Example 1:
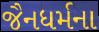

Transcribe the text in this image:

જૈનધર્મના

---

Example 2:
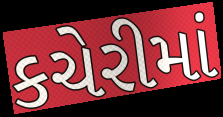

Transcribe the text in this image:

કચેરીમાં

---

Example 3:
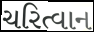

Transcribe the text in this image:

ચરિત્વાન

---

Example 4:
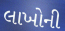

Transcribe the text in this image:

લાખોની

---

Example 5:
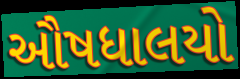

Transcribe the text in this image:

ઔષધાલયો